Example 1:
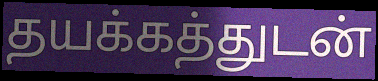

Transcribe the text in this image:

தயக்கத்துடன்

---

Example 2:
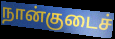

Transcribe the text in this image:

நான்குடைச்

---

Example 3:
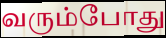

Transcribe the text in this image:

வரும்போது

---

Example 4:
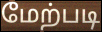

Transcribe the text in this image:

மேற்படி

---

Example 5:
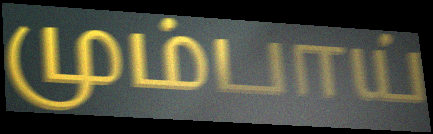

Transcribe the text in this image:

மும்பாய்